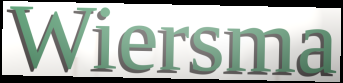
Wiersma